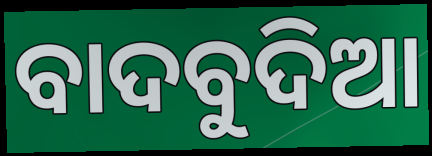
ବାଦବୁଦିଆ